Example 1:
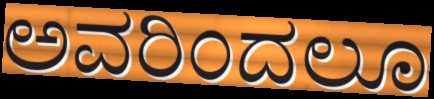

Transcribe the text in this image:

ಅವರಿಂದಲೂ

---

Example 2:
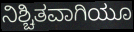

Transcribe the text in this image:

ನಿಶ್ಚಿತವಾಗಿಯೂ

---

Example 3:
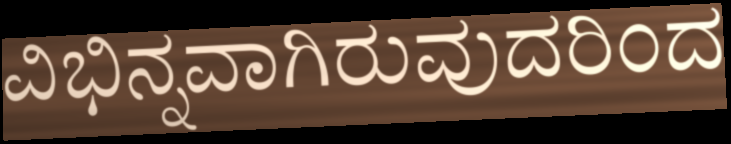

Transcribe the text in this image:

ವಿಭಿನ್ನವಾಗಿರುವುದರಿಂದ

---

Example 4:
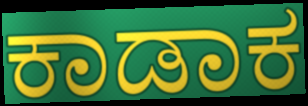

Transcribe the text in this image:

ಕಾಡಾಕ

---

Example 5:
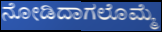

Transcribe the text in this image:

ನೋಡಿದಾಗಲೊಮ್ಮೆ